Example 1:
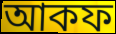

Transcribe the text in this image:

আকফ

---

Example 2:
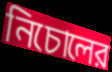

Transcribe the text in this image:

নিচোলের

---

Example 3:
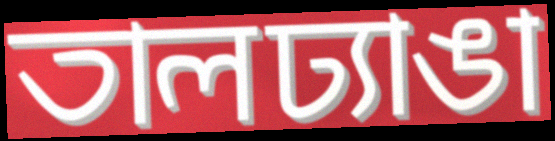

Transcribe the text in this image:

তালঢ্যাঙা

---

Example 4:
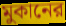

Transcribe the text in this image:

মুকানের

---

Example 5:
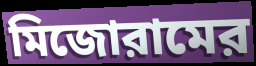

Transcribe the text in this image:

মিজোরামের